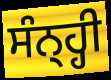
ਸੰਨ੍ਹ੍ਹੀ